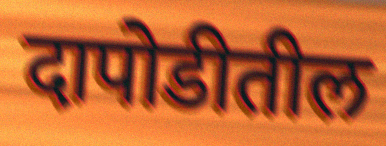
दापोडीतील